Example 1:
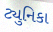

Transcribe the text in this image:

ટ્યુનિકા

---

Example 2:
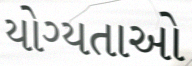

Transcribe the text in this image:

યોગ્યતાઓ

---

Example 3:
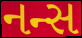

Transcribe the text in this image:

નન્સ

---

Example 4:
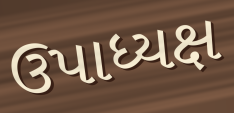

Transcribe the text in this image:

ઉપાધ્યક્ષ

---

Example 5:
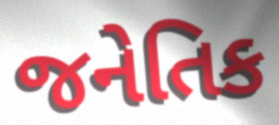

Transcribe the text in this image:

જનેતિક